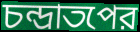
চন্দ্রাতপের